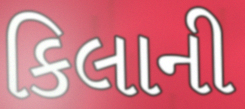
કિલાની